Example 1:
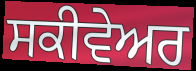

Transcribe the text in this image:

ਸਕੀਵੇਅਰ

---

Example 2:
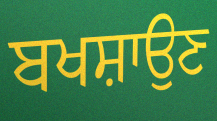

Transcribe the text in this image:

ਬਖਸ਼ਾਉਣ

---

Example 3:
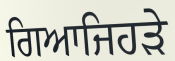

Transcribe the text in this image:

ਗਿਆਜਿਹੜੇ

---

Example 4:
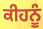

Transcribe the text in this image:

ਕੀਹਨੂੰ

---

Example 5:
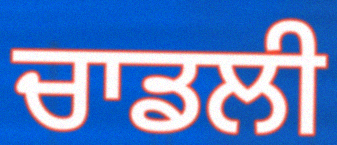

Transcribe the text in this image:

ਚਾਡਲੀ